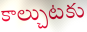
కాల్చుటకు